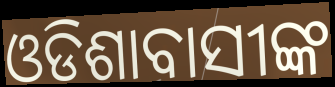
ଓଡିଶାବାସୀଙ୍କ